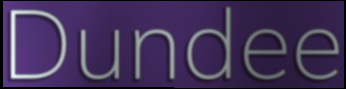
Dundee